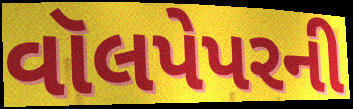
વૉલપેપરની